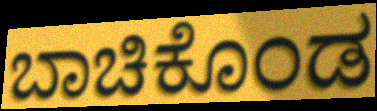
ಬಾಚಿಕೊಂಡ